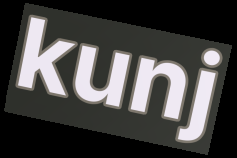
kunj